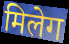
मिलेग